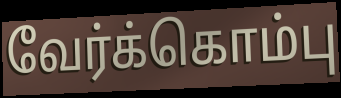
வேர்க்கொம்பு